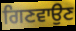
ਗਿਣਵਾਉਣ